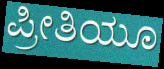
ಪ್ರೀತಿಯೂ